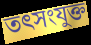
তৎসংযুক্ত